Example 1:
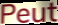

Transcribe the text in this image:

Peut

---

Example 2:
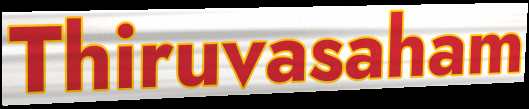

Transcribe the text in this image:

Thiruvasaham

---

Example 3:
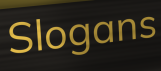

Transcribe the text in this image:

Slogans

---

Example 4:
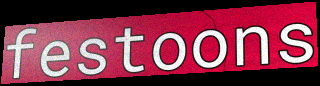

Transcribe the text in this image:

festoons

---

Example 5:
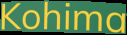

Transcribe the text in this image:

Kohima